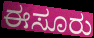
ಈಸೂರು